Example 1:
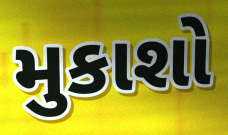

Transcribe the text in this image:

મુકાશો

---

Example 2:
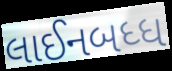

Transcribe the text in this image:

લાઈનબધ્ધ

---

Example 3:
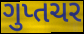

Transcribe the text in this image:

ગુપ્તચર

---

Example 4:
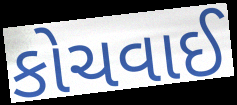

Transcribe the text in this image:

કોચવાઈ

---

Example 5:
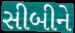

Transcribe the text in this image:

સીબીને